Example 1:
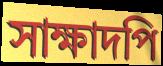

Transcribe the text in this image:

সাক্ষাদপি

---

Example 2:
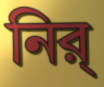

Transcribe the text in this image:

নির্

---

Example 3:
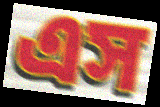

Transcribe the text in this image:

এস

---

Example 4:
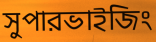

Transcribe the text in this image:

সুপারভাইজিং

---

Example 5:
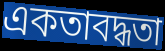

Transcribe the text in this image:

একতাবদ্ধতা